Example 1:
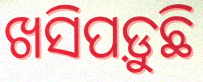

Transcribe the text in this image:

ଖସିପଡ଼ୁଛି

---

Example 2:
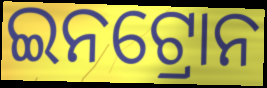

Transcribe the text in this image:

ଇନଟ୍ରୋନ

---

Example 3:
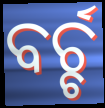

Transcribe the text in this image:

ବର୍ଚ୍ଚ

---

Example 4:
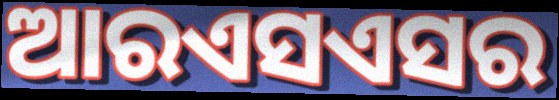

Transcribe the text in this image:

ଆରଏସଏସର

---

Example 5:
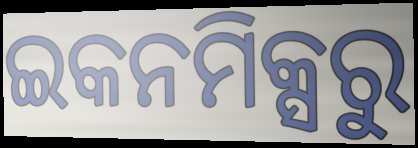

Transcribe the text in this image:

ଇକନମିକ୍ସରୁ